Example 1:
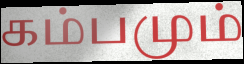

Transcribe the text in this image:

கம்பமும்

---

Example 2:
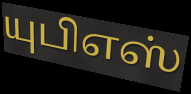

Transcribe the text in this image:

யுபிஎஸ்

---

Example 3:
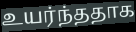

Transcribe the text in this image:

உயர்ந்ததாக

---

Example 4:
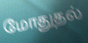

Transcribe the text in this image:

மோதுதல்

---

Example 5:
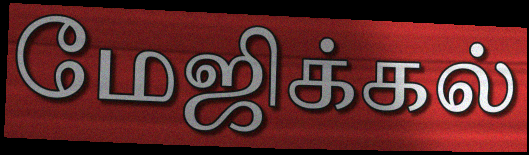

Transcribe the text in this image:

மேஜிக்கல்